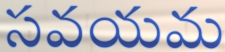
సవయమ